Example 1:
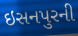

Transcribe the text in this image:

ઇસનપુરની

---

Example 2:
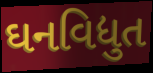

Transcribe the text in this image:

ઘનવિદ્યુત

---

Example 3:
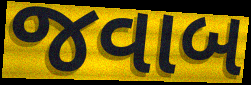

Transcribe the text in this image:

જવાબ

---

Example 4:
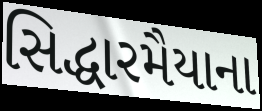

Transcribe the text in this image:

સિદ્ધારમૈયાના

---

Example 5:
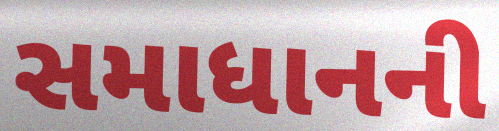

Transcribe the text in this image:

સમાધાનની